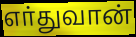
எர்துவான்